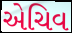
એચિવ